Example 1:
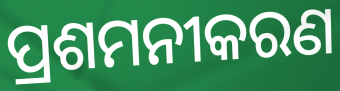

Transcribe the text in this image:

ପ୍ରଶମନୀକରଣ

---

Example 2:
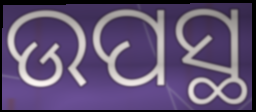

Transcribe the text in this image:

ଉପସ୍ଥ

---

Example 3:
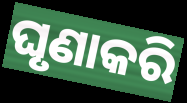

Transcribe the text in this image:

ଘୃଣାକରି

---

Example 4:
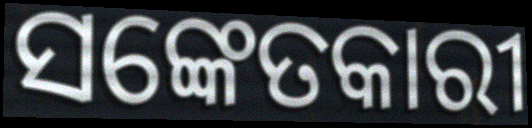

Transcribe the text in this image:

ସଙ୍କେତକାରୀ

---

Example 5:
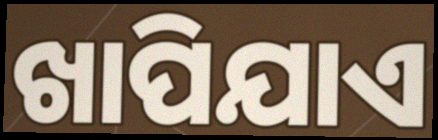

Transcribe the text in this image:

ଖାପିଯାଏ